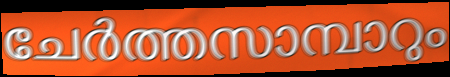
ചേർത്തസാമ്പാറും